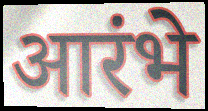
आरंभे